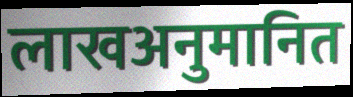
लाखअनुमानित